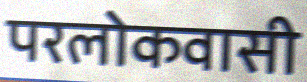
परलोकवासी